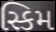
સ્કિમ